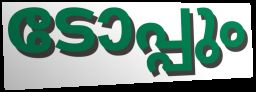
ടോപ്പും